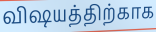
விஷயத்திற்காக